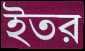
ইতর